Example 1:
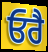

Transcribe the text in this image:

ਓਰੈ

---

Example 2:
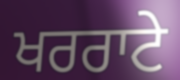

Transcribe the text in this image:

ਖਰਰਾਟੇ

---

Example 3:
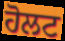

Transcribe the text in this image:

ਹੋਲਟ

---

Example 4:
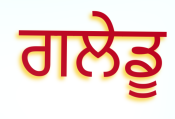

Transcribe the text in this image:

ਗਲੇਡੂ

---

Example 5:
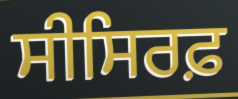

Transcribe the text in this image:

ਸੀਸਿਰਫ਼